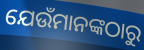
ଯେଉଁମାନଙ୍କଠାରୁ